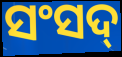
ସଂସଦ୍